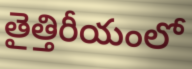
తైత్తిరీయంలో